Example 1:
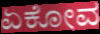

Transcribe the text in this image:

ಏಕೋವ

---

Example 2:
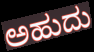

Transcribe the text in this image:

ಅಹುದು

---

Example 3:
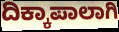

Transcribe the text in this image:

ದಿಕ್ಕಾಪಾಲಾಗಿ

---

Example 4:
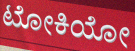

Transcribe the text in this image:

ಟೋಕಿಯೋ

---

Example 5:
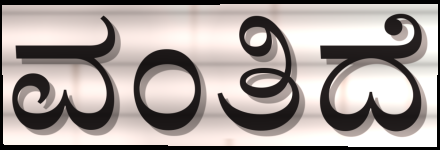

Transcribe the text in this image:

ವಂತಿದೆ